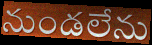
నుండలేను